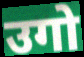
उगो